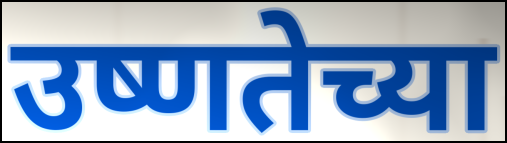
उष्णतेच्या